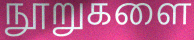
நூறுகளை